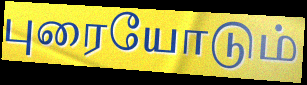
புரையோடும்